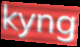
kyng